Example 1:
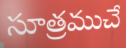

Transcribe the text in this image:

సూత్రముచే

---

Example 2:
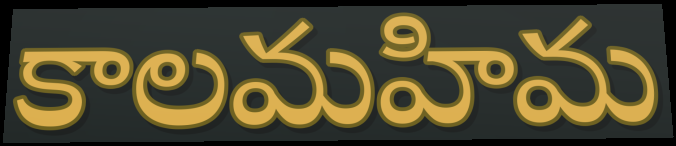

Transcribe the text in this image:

కాలమహిమ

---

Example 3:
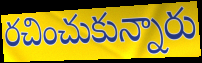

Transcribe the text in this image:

రచించుకున్నారు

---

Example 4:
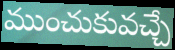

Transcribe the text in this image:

ముంచుకువచ్చే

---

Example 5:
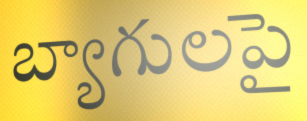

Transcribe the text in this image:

బ్యాగులపై